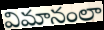
విమానంలా